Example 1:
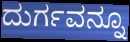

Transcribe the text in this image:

ದುರ್ಗವನ್ನೂ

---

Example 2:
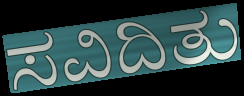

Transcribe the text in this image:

ಸವಿದಿತು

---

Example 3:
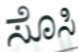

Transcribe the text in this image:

ಸೊಸಿ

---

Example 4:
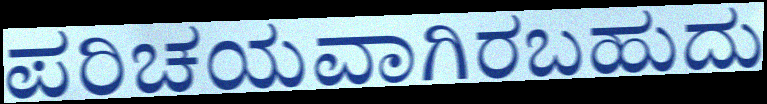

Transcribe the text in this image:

ಪರಿಚಯವಾಗಿರಬಹುದು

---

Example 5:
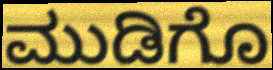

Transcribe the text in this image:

ಮುಡಿಗೊ